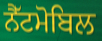
ਨੈੱਟਮੋਬਿਲ